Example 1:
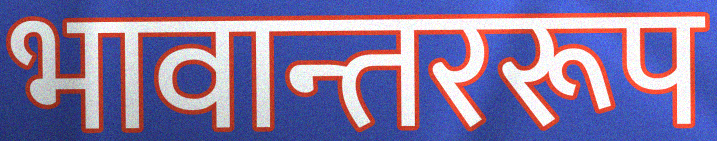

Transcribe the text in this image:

भावान्तररूप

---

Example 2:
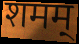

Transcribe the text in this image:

शमम्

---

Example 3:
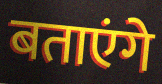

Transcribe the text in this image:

बताएंगे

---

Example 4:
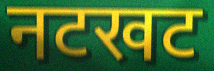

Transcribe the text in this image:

नटखट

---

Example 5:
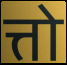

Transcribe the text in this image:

त्तो